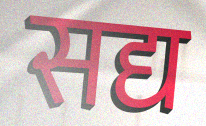
सद्य